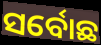
ସର୍ବୋଛ